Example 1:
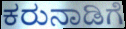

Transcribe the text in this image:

ಕರುನಾಡಿಗೆ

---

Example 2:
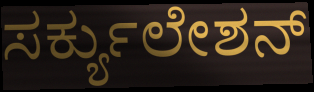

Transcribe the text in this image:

ಸರ್ಕ್ಯುಲೇಶನ್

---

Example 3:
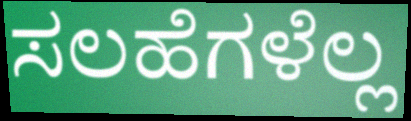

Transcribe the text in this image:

ಸಲಹೆಗಳೆಲ್ಲ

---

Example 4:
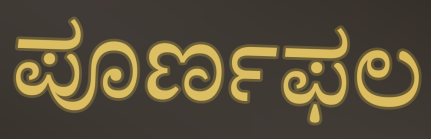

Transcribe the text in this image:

ಪೂರ್ಣಫಲ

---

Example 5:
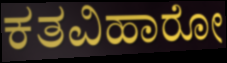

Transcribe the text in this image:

ಕತವಿಹಾರೋ